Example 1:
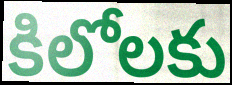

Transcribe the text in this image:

కిలోలకు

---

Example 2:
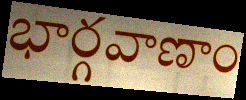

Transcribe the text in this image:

భార్గవాణాం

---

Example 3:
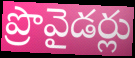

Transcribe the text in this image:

ప్రొవైడర్లు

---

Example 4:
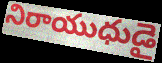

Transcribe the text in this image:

నిరాయుధుడై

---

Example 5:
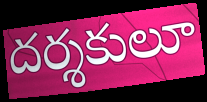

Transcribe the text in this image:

దర్శకులూ